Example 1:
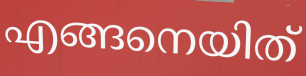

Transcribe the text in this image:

എങ്ങനെയിത്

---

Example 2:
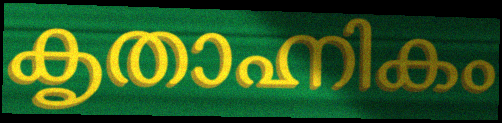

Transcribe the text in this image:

കൃതാഹ്നികം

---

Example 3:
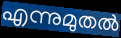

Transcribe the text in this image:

എന്നുമുതൽ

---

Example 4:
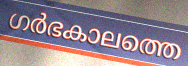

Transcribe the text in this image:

ഗർഭകാലത്തെ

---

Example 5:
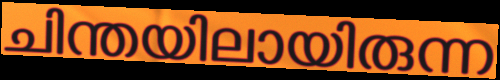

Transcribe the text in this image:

ചിന്തയിലായിരുന്ന